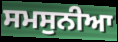
ਸਮਸੁਨੀਆ